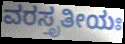
ವರಸ್ತೃತೀಯಃ